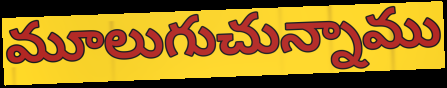
మూలుగుచున్నాము